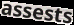
assests